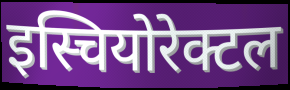
इस्चियोरेक्टल